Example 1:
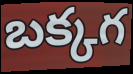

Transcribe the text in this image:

బక్కగ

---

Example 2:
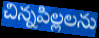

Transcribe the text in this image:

చిన్నపిల్లలను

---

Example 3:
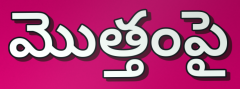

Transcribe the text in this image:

మొత్తంపై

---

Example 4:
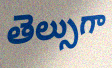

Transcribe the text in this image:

తెల్సుగా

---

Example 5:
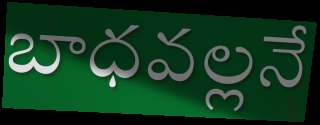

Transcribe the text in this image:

బాధవల్లనే